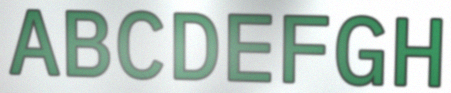
ABCDEFGH